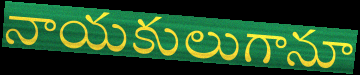
నాయకులుగానూ